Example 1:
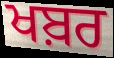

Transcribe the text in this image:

ਖਬ਼ਰ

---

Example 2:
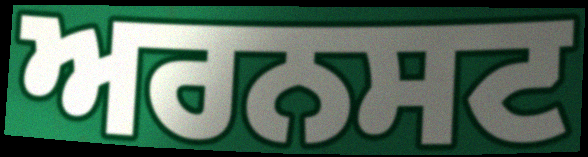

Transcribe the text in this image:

ਅਰਨਸਟ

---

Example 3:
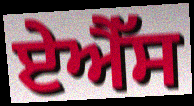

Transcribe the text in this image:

ਏਐੱਸ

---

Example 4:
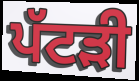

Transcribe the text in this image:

ਪੱਟੜੀ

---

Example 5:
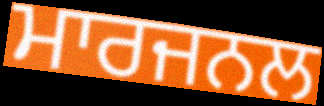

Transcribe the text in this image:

ਮਾਰਜਨਲ